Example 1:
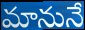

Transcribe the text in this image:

మానునే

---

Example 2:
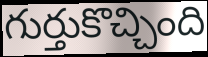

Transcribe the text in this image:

గుర్తుకొచ్చింది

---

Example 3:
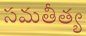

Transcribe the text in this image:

సమతీత్య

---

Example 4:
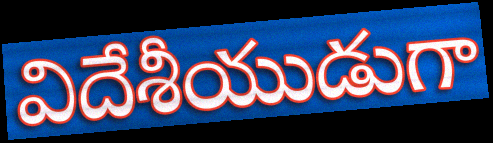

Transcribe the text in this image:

విదేశీయుడుగా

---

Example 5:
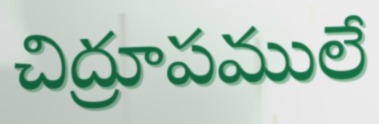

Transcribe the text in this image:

చిద్రూపములే